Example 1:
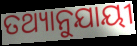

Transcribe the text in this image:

ତଥ୍ୟାନୁଯାୟୀ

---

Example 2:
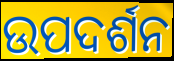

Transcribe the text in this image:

ଉପଦର୍ଶନ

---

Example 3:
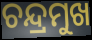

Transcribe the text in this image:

ଚନ୍ଦ୍ରମୁଖ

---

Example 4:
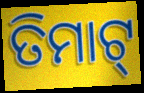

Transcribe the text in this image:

ତିମାଟ୍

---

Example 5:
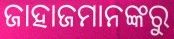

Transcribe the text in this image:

ଜାହାଜମାନଙ୍କରୁ